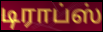
டிராப்ஸ்